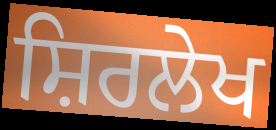
ਸ਼ਿਰਲੇਖ